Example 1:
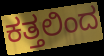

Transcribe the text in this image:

ಕತ್ತಲಿಂದ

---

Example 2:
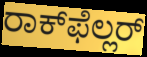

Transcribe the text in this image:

ರಾಕ್‌ಫೆಲ್ಲರ್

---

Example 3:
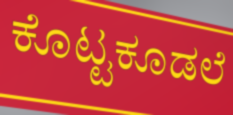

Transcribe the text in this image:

ಕೊಟ್ಟಕೂಡಲೆ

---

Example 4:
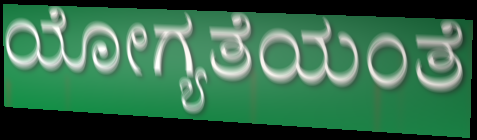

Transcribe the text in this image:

ಯೋಗ್ಯತೆಯಂತೆ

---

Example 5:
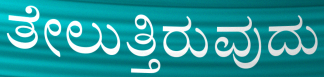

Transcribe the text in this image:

ತೇಲುತ್ತಿರುವುದು